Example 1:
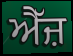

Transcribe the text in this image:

ਐੱਜ਼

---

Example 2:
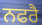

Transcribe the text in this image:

ਨਫਰੈ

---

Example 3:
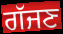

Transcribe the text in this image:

ਗੱਜਣ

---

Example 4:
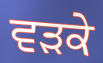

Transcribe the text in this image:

ਵੜਕੇ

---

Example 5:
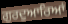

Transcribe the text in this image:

ਗੁਰਦੁਆਰਿਆਂ